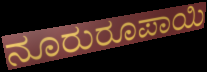
ನೂರುರೂಪಾಯಿ